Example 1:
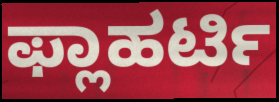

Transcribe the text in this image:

ಫ್ಲಾಹರ್ಟಿ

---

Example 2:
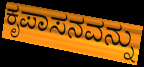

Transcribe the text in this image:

ಕೃಪಾಸನವನ್ನು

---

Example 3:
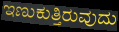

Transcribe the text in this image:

ಇಣುಕುತ್ತಿರುವುದು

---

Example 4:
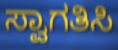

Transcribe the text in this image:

ಸ್ವಾಗತಿಸಿ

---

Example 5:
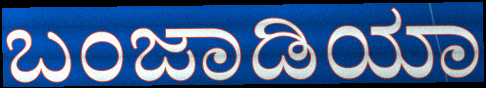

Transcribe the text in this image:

ಬಂಜಾಡಿಯಾ